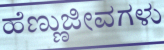
ಹೆಣ್ಣುಜೀವಗಳು